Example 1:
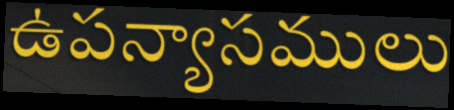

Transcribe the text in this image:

ఉపన్యాసములు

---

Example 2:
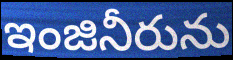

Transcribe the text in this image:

ఇంజినీరును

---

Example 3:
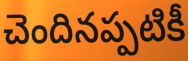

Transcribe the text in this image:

చెందినప్పటికీ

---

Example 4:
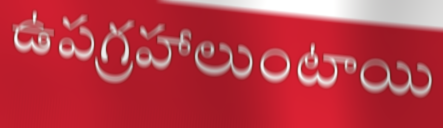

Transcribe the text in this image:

ఉపగ్రహాలుంటాయి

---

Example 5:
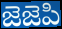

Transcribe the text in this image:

జెజెపి